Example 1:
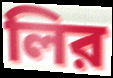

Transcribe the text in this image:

লির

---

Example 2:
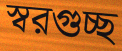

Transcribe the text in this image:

স্বরগুচ্ছ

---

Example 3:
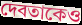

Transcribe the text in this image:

দেবতাকেও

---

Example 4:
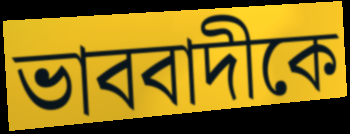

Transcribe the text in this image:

ভাববাদীকে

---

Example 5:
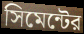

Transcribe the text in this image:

সিমেন্টের